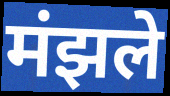
मंझले